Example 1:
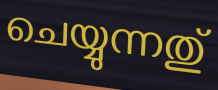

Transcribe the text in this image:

ചെയ്യുന്നതു്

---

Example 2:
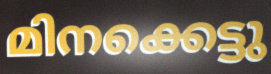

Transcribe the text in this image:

മിനക്കെട്ടു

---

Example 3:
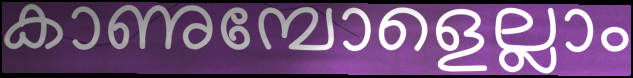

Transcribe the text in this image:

കാണുമ്പോളെല്ലാം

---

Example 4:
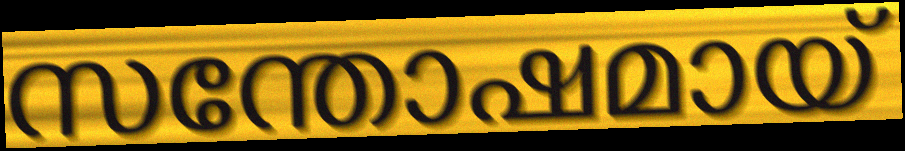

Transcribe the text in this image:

സന്തോഷമായ്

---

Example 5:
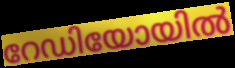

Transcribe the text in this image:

റേഡിയോയിൽ